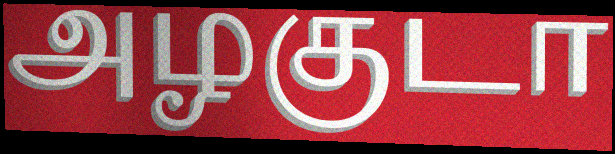
அழகுடா